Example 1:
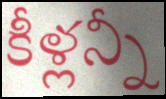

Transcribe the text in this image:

కీళ్లన్నీ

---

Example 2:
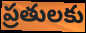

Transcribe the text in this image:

ప్రతులకు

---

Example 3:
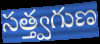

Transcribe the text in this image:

సత్త్వగుణ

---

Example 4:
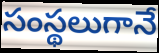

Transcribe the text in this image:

సంస్థలుగానే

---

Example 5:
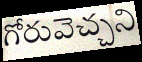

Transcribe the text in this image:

గోరువెచ్చని